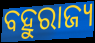
ବହୁରାଜ୍ୟ